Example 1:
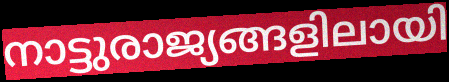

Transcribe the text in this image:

നാട്ടുരാജ്യങ്ങളിലായി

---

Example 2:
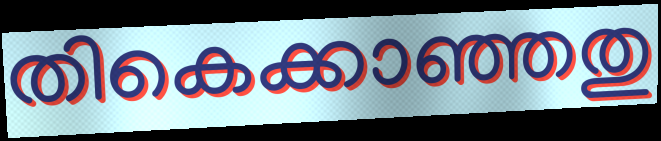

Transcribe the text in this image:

തികെക്കാഞ്ഞതു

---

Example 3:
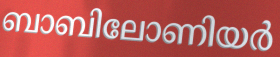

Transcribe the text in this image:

ബാബിലോണിയർ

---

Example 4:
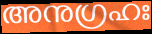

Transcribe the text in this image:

അനുഗ്രഹഃ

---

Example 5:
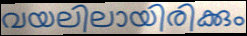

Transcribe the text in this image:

വയലിലായിരിക്കും